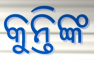
କୁନ୍ତିଙ୍କ